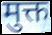
मुक्त